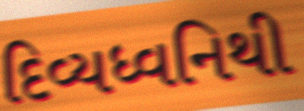
દિવ્યધ્વનિથી